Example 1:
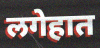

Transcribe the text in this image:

लगेहात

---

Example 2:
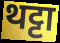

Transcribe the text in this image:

थट्टा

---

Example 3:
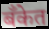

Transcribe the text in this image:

बॅंकेत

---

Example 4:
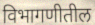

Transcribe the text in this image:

विभागणीतील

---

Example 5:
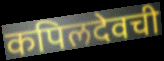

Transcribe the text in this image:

कपिलदेवची